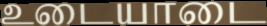
உடையாடை